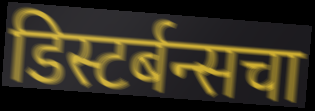
डिस्टर्बन्सचा